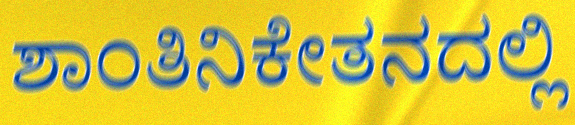
ಶಾಂತಿನಿಕೇತನದಲ್ಲಿ